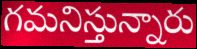
గమనిస్తున్నారు